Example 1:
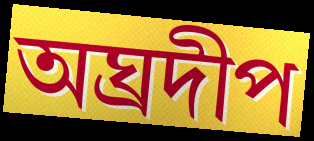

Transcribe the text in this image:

অঘ্ৰদীপ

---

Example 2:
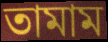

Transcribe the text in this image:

তামাম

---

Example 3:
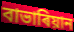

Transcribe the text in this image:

বাভাৰিয়ান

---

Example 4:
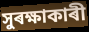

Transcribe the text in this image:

সুৰক্ষাকাৰী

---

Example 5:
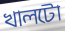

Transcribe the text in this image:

খালটো